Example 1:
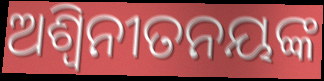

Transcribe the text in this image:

ଅଶ୍ୱିନୀତନୟଙ୍କ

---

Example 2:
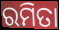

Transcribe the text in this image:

ରମିତା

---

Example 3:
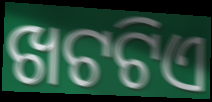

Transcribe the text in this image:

ଖଟଟିଏ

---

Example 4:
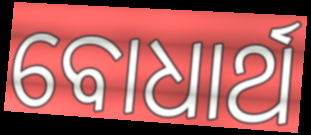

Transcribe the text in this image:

ବୋଧାର୍ଥ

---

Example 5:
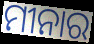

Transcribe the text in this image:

ମୀନାର